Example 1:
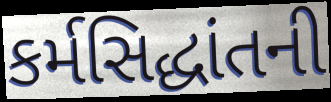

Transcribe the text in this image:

કર્મસિદ્ધાંતની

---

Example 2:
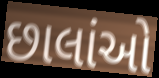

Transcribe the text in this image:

છાલાંઓ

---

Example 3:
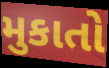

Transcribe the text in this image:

મુકાતો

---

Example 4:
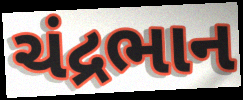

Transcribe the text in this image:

ચંદ્રભાન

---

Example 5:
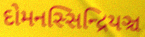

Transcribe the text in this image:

દોમનસ્સિન્દ્રિયઞ્ચ